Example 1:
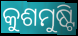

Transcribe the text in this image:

କୁଶମୁଷ୍ଟି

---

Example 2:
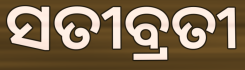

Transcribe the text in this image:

ସତୀବ୍ରତୀ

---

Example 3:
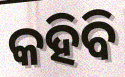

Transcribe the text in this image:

କହିବି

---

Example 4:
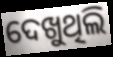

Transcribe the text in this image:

ଦେଖୁଥିଲି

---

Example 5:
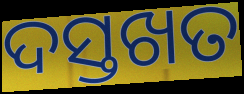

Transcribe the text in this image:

ଦସ୍ତଖତ